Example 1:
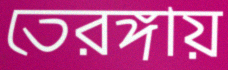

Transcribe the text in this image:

তেরঙ্গায়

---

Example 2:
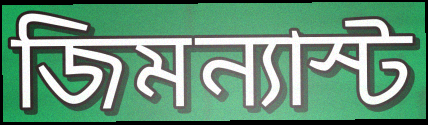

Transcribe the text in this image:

জিমন্যাস্ট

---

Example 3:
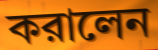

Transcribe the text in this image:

করালেন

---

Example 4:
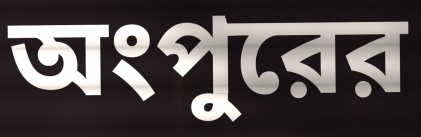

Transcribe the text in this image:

অংপুরের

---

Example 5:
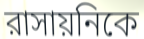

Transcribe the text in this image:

রাসায়নিকে